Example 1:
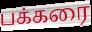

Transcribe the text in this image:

பக்கரை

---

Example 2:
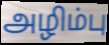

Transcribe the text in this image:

அழிம்பு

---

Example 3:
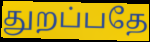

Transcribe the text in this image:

துறப்பதே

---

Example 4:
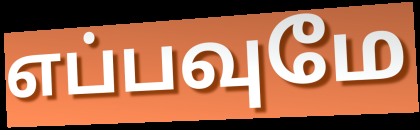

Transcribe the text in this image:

எப்பவுமே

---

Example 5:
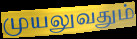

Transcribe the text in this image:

முயலுவதும்